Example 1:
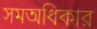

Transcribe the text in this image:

সমঅধিকার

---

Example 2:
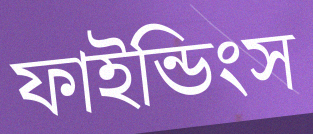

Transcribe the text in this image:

ফাইন্ডিংস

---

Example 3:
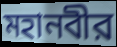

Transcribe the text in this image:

মহানবীর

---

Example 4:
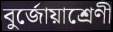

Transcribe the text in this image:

বুর্জোয়াশ্রেণী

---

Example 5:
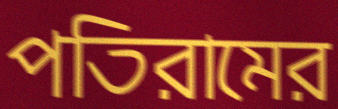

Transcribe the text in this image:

পতিরামের